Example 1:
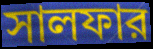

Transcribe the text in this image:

সালফার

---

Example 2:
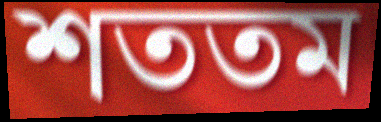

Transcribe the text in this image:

শততম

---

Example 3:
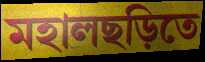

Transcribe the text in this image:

মহালছড়িতে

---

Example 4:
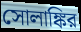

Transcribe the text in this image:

সোলাঙ্কির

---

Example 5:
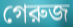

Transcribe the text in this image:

গেরুজ